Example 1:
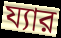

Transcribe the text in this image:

য্যার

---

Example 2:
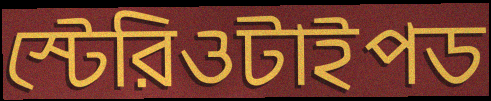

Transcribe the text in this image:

স্টেরিওটাইপড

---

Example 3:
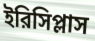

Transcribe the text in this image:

ইরিসিপ্লাস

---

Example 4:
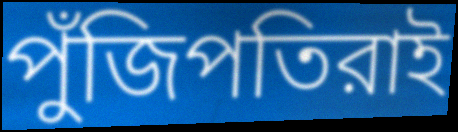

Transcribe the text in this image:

পুঁজিপতিরাই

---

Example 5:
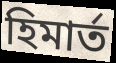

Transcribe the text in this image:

হিমার্ত